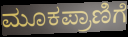
ಮೂಕಪ್ರಾಣಿಗೆ